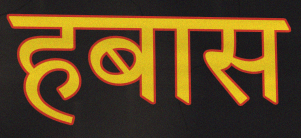
हबास